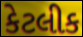
કેટલીક